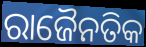
ରାଜୈନତିକ